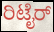
ರಿಟೈರ್